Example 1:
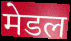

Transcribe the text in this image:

मेडल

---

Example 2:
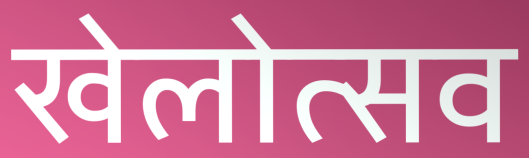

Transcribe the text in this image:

खेलोत्सव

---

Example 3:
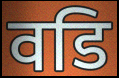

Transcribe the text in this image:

वडि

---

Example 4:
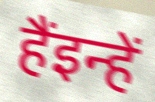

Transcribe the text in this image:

हैंइन्हें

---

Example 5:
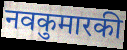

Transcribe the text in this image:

नवकुमारकी